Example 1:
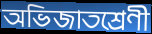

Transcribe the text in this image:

অভিজাতশ্রেণী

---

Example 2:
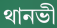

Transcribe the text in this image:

থানভী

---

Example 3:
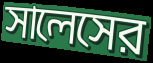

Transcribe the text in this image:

সালেসের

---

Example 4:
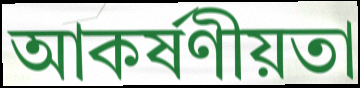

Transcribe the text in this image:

আকর্ষণীয়তা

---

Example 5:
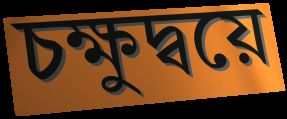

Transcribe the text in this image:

চক্ষুদ্বয়ে